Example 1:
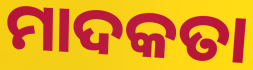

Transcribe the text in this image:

ମାଦକତା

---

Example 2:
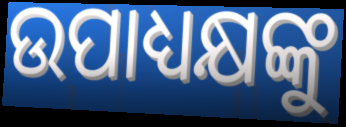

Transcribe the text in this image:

ଉପାଧ୍ୟକ୍ଷଙ୍କୁ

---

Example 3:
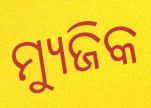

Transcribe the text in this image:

ମ୍ୟୁଜିକ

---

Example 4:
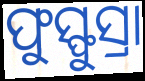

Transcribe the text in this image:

ଫୁସ୍ଫୁସ୍ରା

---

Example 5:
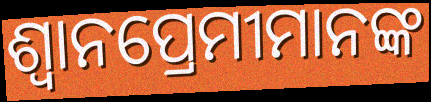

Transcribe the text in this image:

ଶ୍ଵାନପ୍ରେମୀମାନଙ୍କ